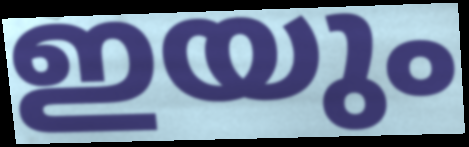
ഇയും